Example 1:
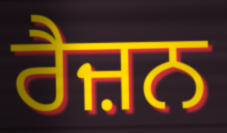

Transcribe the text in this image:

ਰੈਜ਼ਨ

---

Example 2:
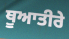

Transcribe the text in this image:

ਥੂਆਤੀਰੇ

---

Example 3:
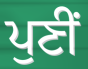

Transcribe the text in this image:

ਪੁਣੀਂ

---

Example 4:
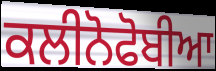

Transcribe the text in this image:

ਕਲੀਨੋਫੋਬੀਆ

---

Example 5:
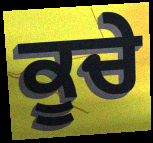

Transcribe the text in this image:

ਕੂਚੇ